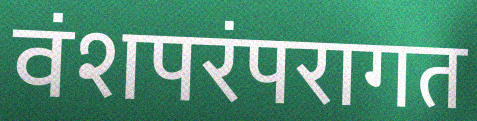
वंशपरंपरागत